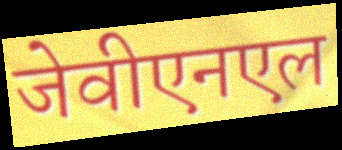
जेवीएनएल